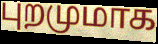
புறமுமாக